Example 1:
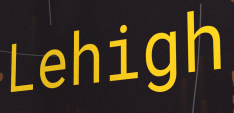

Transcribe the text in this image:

Lehigh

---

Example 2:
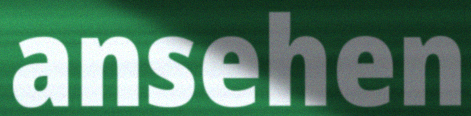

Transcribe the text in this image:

ansehen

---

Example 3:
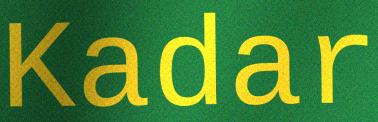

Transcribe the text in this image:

Kadar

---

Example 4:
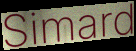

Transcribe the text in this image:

Simard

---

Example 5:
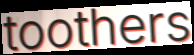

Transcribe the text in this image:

toothers